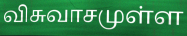
விசுவாசமுள்ள